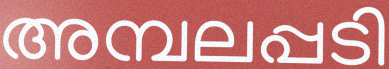
അമ്പലപ്പടി